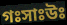
গঃসাঃউঃ